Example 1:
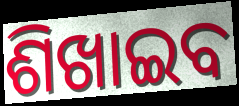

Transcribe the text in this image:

ଶିଖାଇବ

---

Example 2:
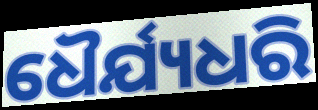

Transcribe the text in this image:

ଧୈର୍ଯ୍ୟଧରି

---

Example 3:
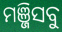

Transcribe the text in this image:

ମଞ୍ଜିସବୁ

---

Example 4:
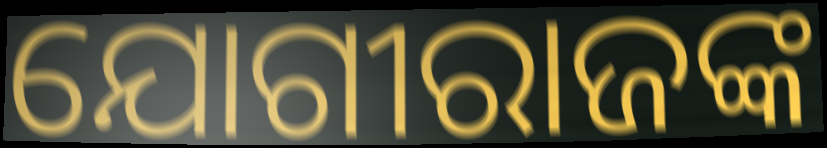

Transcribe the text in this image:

ଯୋଗୀରାଜଙ୍କ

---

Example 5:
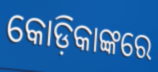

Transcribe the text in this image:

କୋଡ଼ିକାଙ୍କରେ